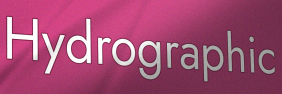
Hydrographic